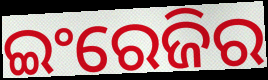
ଇଂରେଜିର